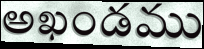
అఖండము